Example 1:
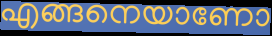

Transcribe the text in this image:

എങ്ങനെയാണോ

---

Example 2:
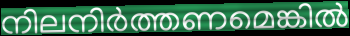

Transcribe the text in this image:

നിലനിർത്തണമെങ്കിൽ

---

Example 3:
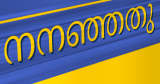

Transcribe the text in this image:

നനഞ്ഞതു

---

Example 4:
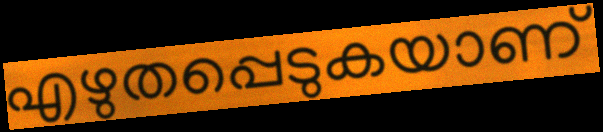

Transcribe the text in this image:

എഴുതപ്പെടുകയാണ്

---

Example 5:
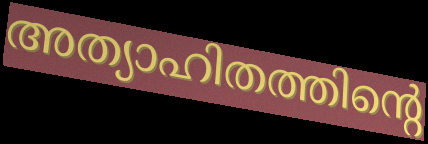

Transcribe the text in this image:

അത്യാഹിതത്തിന്റെ